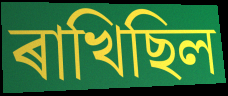
ৰাখিছিল